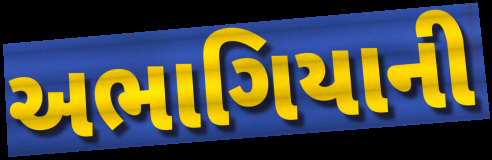
અભાગિયાની